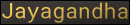
Jayagandha